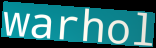
warhol